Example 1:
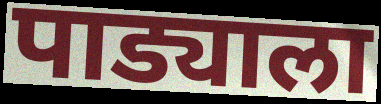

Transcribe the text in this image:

पाड्याला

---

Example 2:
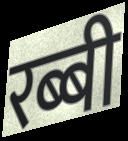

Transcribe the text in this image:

रब्बी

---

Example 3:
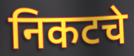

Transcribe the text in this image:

निकटचे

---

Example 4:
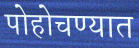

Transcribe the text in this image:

पोहोचण्यात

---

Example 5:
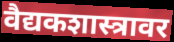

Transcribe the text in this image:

वैद्यकशास्त्रावर